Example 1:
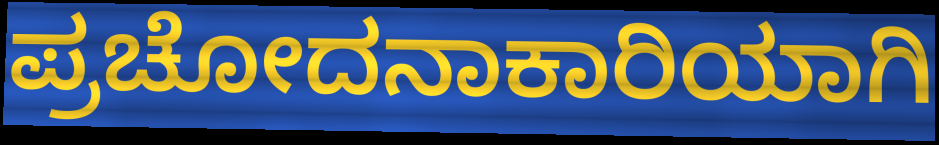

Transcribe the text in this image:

ಪ್ರಚೋದನಾಕಾರಿಯಾಗಿ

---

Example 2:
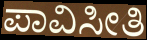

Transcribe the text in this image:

ಪಾವಿಸೀತಿ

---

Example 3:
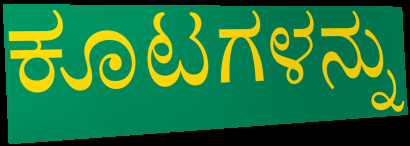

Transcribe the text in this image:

ಕೂಟಗಳನ್ನು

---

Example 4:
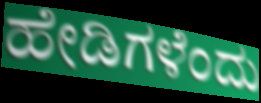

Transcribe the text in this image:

ಹೇಡಿಗಳೆಂದು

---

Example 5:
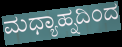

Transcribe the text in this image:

ಮಧ್ಯಾಹ್ನದಿಂದ